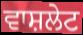
ਵਾਸ਼ਲੇਟ